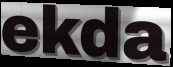
ekda